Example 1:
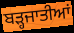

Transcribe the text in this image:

ਬੜ੍ਹਜਾਤੀਆਂ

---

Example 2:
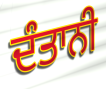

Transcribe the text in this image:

ਦੰਤਾਨੀ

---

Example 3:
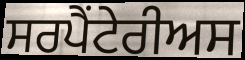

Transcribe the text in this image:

ਸਰਪੈਂਟੇਰੀਅਸ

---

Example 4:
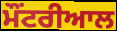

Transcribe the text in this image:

ਮੌਂਟਰੀਆਲ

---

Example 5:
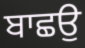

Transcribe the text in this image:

ਬਾਛਉ